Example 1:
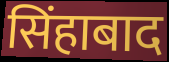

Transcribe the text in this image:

सिंहाबाद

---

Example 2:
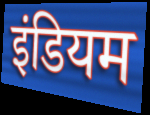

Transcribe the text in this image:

इंडियम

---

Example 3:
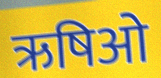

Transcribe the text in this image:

ऋषिओ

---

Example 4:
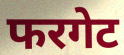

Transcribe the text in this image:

फरगेट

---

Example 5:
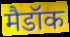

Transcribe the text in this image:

मैडॉक